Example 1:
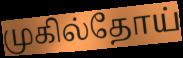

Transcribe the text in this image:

முகில்தோய்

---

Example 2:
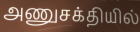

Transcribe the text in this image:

அணுசக்தியில்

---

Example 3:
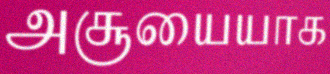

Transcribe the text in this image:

அசூயையாக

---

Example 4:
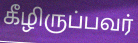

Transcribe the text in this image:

கீழிருப்பவர்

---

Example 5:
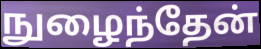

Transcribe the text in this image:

நுழைந்தேன்